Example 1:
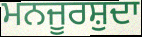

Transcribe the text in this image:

ਮਨਜੂਰਸ਼ੁਦਾ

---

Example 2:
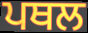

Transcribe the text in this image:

ਪਥਲ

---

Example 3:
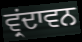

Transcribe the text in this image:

ਵ੍ਰਂਦਾਵਨ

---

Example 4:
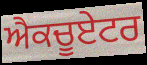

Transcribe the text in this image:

ਐਕਚੂਏਟਰ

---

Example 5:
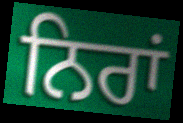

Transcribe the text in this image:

ਨਿਰਾਂ